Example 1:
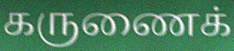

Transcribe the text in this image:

கருணைக்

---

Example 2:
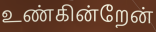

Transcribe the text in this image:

உண்கின்றேன்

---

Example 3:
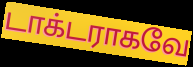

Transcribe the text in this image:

டாக்டராகவே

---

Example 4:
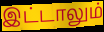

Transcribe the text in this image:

இட்டாலும்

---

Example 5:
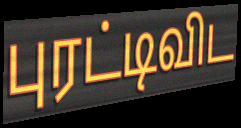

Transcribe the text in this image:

புரட்டிவிட